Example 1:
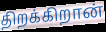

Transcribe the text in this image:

திறக்கிறான்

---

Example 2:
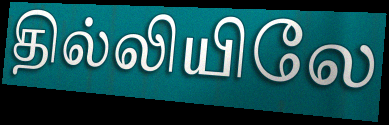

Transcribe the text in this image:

தில்லியிலே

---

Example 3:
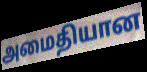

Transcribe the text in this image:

அமைதியான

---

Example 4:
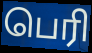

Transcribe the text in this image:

பெரி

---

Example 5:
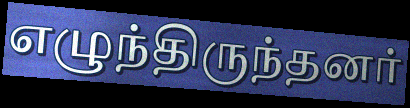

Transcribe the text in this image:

எழுந்திருந்தனர்